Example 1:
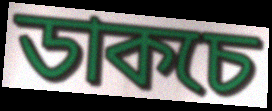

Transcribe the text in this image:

ডাকচে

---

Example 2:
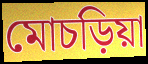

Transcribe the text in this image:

মোচড়িয়া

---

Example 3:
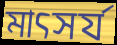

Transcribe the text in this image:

মাৎসর্য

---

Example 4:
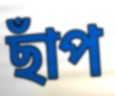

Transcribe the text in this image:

ছাঁপ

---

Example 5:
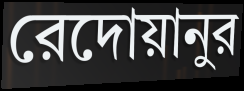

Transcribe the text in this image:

রেদোয়ানুর